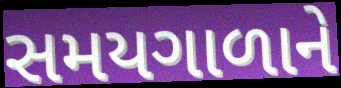
સમયગાળાને